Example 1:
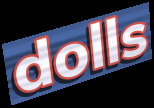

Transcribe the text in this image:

dolls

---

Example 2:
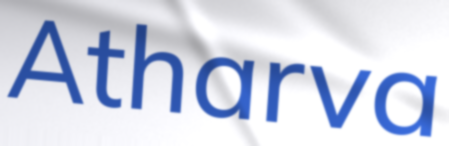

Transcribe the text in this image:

Atharva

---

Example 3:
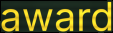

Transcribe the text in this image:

award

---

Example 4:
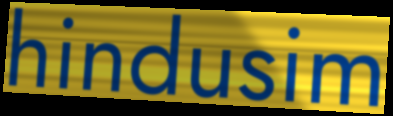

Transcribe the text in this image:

hindusim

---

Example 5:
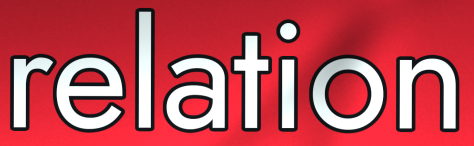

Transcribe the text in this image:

relation